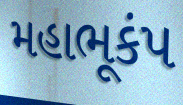
મહાભૂકંપ